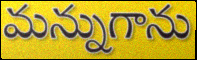
మన్నుగాను